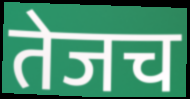
तेजच